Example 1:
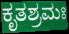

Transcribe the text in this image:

ಕೃತಶ್ರಮಃ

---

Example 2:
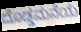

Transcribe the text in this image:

ದೊಡ್ಡಮನೆಯ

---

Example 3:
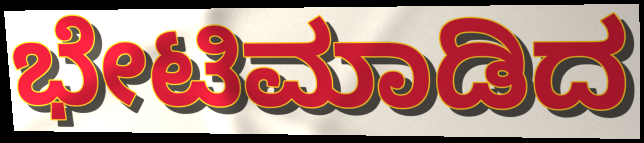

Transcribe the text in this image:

ಭೇಟಿಮಾಡಿದ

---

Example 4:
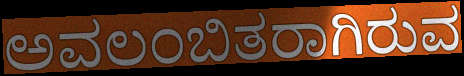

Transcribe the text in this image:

ಅವಲಂಬಿತರಾಗಿರುವ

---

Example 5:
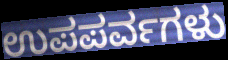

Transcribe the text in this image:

ಉಪಪರ್ವಗಳು